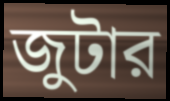
জুটার